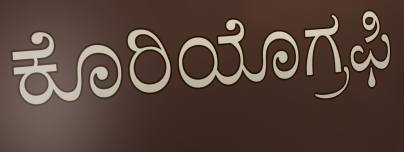
ಕೊರಿಯೊಗ್ರಫಿ